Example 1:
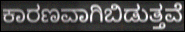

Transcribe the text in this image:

ಕಾರಣವಾಗಿಬಿಡುತ್ತವೆ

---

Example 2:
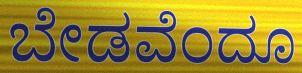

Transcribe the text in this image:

ಬೇಡವೆಂದೂ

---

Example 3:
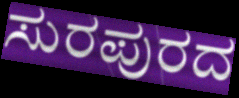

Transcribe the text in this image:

ಸುರಪುರದ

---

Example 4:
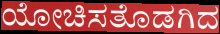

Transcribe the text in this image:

ಯೋಚಿಸತೊಡಗಿದ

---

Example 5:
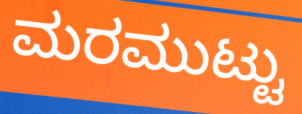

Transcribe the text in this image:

ಮರಮುಟ್ಟು